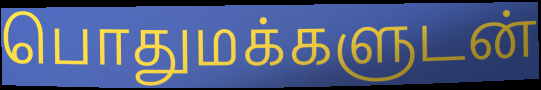
பொதுமக்களுடன்